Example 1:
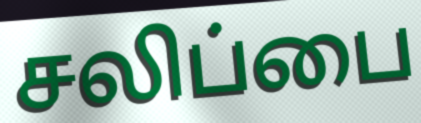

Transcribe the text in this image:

சலிப்பை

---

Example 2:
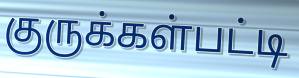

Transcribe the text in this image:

குருக்கள்பட்டி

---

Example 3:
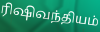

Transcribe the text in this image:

ரிஷிவந்தியம்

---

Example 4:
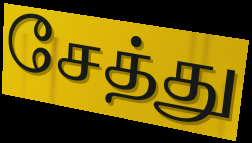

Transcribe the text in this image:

சேத்து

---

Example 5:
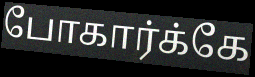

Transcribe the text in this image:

போகார்க்கே